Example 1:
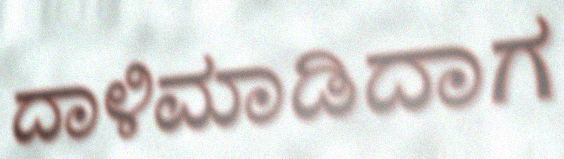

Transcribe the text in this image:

ದಾಳಿಮಾಡಿದಾಗ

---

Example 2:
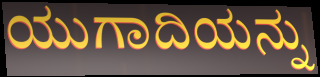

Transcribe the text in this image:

ಯುಗಾದಿಯನ್ನು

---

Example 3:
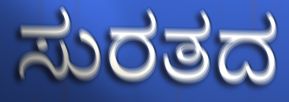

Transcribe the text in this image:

ಸುರತದ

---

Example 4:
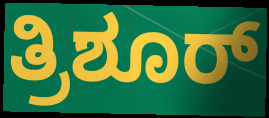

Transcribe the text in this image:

ತ್ರಿಶೂರ್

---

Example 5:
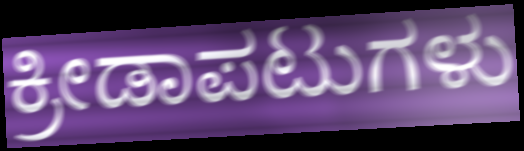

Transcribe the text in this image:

ಕ್ರೀಡಾಪಟುಗಳು